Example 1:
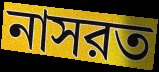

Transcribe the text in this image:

নাসরত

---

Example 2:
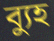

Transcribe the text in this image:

ব্যুহ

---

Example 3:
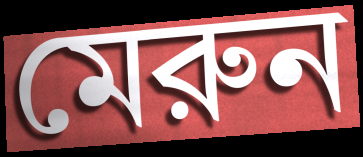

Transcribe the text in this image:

মেরুন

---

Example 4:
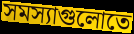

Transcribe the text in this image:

সমস্যাগুলোতে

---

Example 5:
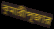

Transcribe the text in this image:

কুমারীপূজার